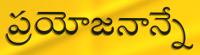
ప్రయోజనాన్నే